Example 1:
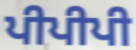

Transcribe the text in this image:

ਪੀਪੀਪੀ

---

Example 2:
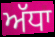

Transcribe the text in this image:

ਅੱਧਾ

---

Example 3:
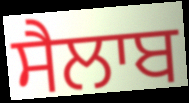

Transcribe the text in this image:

ਸੈਲਾਬ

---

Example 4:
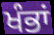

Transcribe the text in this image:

ਖੰਭਾਂ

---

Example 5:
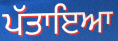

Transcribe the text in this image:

ਪੱਤਾਇਆ